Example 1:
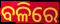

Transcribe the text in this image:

ବଳିରେ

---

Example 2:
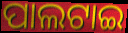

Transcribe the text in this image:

ପାଲଟାଇ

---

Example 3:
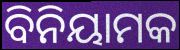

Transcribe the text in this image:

ବିନିୟାମକ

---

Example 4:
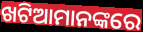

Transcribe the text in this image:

ଖଟିଆମାନଙ୍କରେ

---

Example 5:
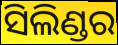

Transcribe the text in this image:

ସିଲିଣ୍ଡର